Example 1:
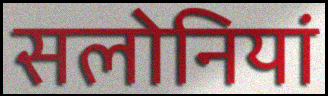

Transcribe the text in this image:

सलोनियां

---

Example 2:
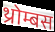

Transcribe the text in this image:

थ्रोम्बस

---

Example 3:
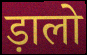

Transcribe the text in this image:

ड़ालो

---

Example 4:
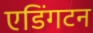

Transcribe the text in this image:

एडिंगटन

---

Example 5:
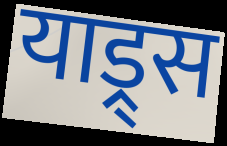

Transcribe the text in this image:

याड्र्स